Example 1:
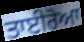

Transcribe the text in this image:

ਤਾਈਰੋਆ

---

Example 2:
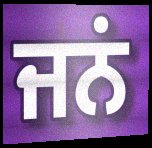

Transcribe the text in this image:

ਜਨਂ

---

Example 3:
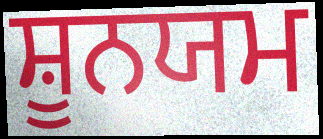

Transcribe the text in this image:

ਸ਼ੂਨਯਮ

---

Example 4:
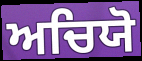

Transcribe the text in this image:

ਅਚਿਯੋ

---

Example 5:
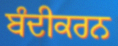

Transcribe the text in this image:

ਬੰਦੀਕਰਨ